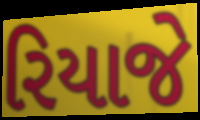
રિયાજે